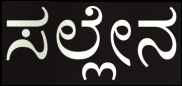
ಸಲ್ಲೇನ